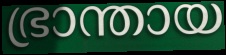
ഭ്രാന്തായ